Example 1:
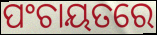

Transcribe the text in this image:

ପଂଚାୟତରେ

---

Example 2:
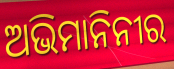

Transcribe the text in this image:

ଅଭିମାନିନୀର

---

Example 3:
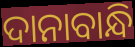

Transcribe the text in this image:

ଦାନାବାନ୍ଧି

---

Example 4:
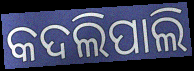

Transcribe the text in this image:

କଦଲିପାଲି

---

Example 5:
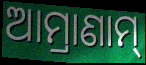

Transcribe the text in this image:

ଆମ୍ରାଣାମ୍